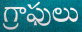
గ్రాఫులు